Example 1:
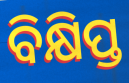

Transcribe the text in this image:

ବିକ୍ଷିପ୍ତ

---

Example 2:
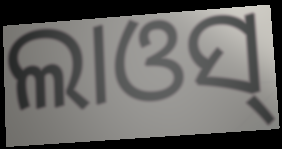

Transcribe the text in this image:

ଲାଓସ୍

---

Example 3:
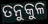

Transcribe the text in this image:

ତନୁକୁଳ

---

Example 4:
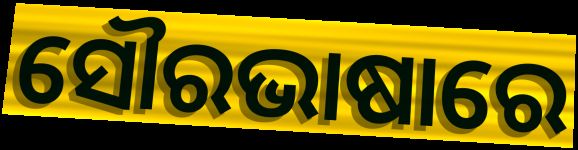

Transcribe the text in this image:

ସୌରଭାଷାରେ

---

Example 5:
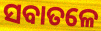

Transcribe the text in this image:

ସବାତଳେ